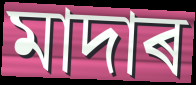
মাদাৰ